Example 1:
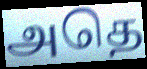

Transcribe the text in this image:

அதெ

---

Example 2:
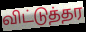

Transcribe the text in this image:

விட்டுத்தர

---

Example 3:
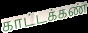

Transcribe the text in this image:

காட்டக்கண்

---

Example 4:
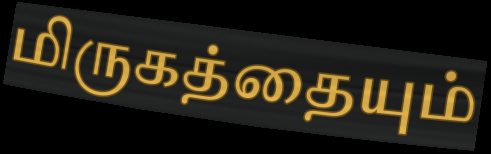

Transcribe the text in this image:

மிருகத்தையும்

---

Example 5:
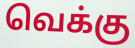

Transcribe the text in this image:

வெக்கு